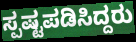
ಸ್ಪಷ್ಟಪಡಿಸಿದ್ದರು